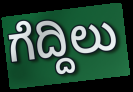
ಗೆದ್ದಿಲು